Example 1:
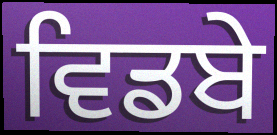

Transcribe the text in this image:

ਵਿਡਬੇ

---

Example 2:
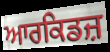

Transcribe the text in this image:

ਆਰਕਿਡਜ਼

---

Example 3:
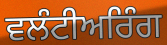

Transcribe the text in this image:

ਵਲੰਟੀਅਰਿੰਗ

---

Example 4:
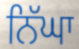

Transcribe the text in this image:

ਨਿੱਘਾ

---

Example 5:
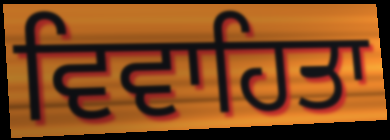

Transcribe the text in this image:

ਵਿਵਾਹਿਤਾ